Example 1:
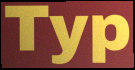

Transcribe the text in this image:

Typ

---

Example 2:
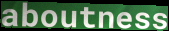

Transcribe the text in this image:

aboutness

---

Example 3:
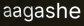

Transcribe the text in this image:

aagashe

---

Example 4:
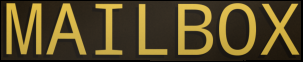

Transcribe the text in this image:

MAILBOX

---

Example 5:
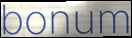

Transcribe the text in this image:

bonum